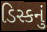
ડિસ્કનું